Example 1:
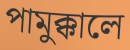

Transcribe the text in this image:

পামুক্কালে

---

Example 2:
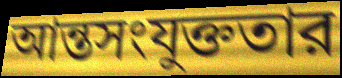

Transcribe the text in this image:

আন্তসংযুক্ততার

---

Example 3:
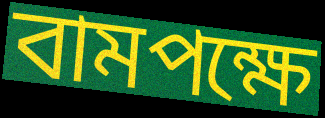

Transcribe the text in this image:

বামপক্ষে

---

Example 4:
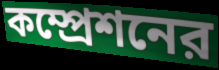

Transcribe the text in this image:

কম্প্রেশনের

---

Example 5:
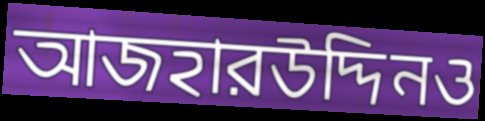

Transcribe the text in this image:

আজহারউদ্দিনও